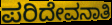
ಪರಿದೇವನಾತಿ